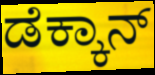
ಡೆಕ್ಕಾನ್